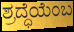
ಶ್ರದ್ಧೆಯೆಂಬ